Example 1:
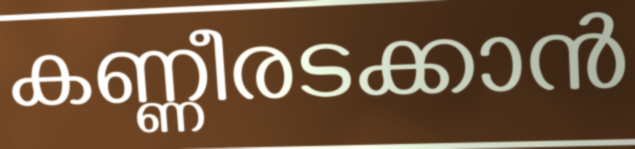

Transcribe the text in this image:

കണ്ണീരടക്കാൻ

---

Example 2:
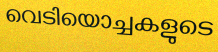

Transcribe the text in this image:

വെടിയൊച്ചകളുടെ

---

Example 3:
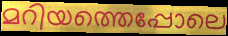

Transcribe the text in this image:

മറിയത്തെപ്പോലെ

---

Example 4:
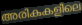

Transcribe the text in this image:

അരികുകളിലെ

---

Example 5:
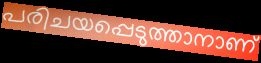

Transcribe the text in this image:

പരിചയപ്പെടുത്താനാണ്